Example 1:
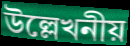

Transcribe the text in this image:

উল্লেখনীয়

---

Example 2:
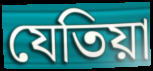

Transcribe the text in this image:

যেতিয়া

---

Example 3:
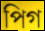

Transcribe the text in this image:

পিগ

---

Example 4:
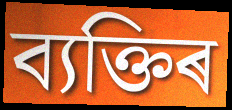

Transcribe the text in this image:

ব্যক্তিৰ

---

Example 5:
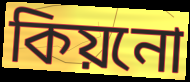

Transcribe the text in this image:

কিয়নো